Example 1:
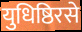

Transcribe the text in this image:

युधिष्ठिरसे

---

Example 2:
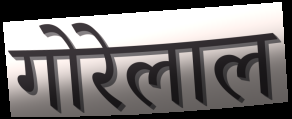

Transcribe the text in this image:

गोरेलाल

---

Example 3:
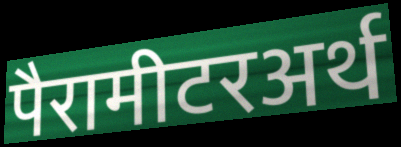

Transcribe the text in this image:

पैरामीटरअर्थ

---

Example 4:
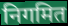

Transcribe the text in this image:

निगमित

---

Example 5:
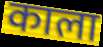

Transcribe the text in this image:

काला